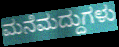
ಮನೆಮದ್ದುಗಳು